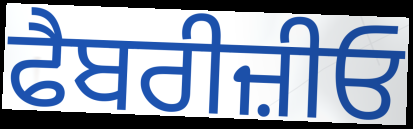
ਫੈਬਰੀਜ਼ੀਓ